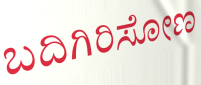
ಬದಿಗಿರಿಸೋಣ